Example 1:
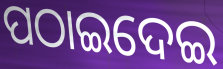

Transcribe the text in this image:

ପଠାଇଦେଇ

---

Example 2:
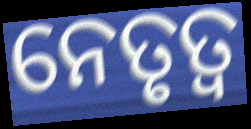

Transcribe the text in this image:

ନେତୃତ୍ଵ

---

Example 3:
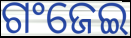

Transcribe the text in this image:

ଗଂଜେଇ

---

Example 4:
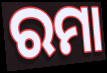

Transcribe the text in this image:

ରମା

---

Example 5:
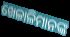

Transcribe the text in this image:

ଖେଳାଳିମାନଙ୍କ